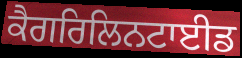
ਕੈਗਰਿਲਿਨਟਾਈਡ